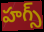
హగ్స్